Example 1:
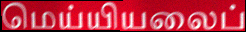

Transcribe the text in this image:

மெய்யியலைப்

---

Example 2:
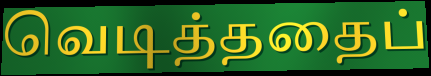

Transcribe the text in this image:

வெடித்ததைப்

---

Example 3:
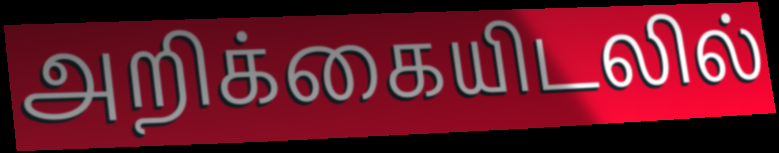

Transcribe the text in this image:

அறிக்கையிடலில்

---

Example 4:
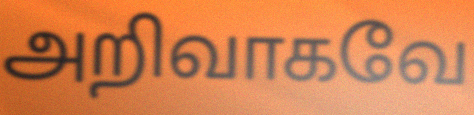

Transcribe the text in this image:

அறிவாகவே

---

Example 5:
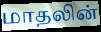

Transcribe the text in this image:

மாதலின்